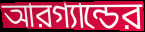
আরগ্যান্ডের